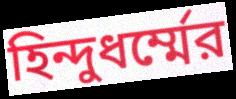
হিন্দুধর্ম্মের